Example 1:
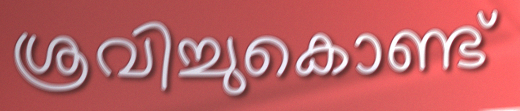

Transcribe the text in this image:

ശ്രവിച്ചുകൊണ്ട്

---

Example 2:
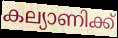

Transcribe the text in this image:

കല്യാണിക്ക്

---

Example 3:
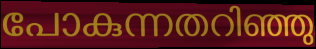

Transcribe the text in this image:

പോകുന്നതറിഞ്ഞു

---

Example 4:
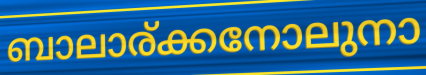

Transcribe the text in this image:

ബാലാര്ക്കനോലുനാ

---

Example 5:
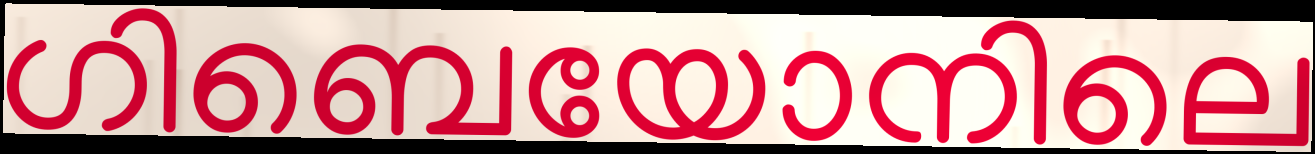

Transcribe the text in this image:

ഗിബെയോനിലെ